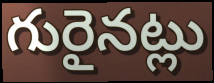
గురైనట్లు